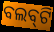
ବଲବ୍‌ଟି